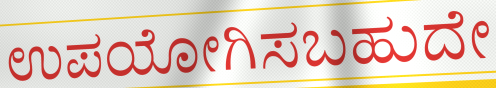
ಉಪಯೋಗಿಸಬಹುದೇ